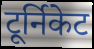
टूर्निकेट